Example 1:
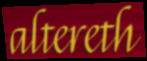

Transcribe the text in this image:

altereth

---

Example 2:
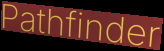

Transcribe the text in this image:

Pathfinder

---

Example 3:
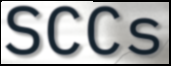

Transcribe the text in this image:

SCCs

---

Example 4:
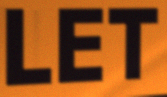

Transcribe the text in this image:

LET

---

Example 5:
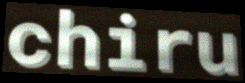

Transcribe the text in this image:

chiru